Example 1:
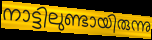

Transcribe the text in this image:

നാട്ടിലുണ്ടായിരുന്നു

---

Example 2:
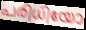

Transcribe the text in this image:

പരിധിയോ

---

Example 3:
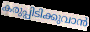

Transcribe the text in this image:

കരുപ്പിടിക്കുവാൻ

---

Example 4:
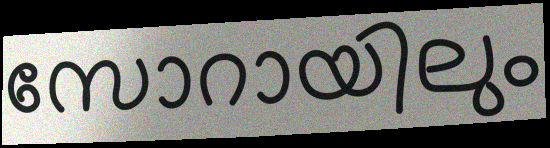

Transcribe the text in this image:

സോറായിലും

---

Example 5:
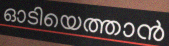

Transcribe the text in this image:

ഓടിയെത്താൻ